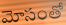
మోసంతో